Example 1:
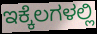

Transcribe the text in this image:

ಇಕ್ಕೆಲಗಳಲ್ಲಿ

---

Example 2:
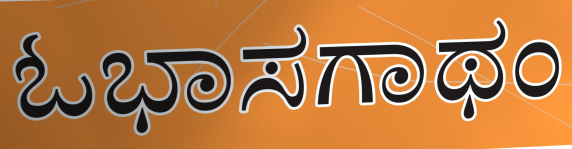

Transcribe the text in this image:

ಓಭಾಸಗಾಥಂ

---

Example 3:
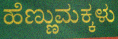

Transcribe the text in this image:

ಹೆಣ್ಣುಮಕ್ಕಳು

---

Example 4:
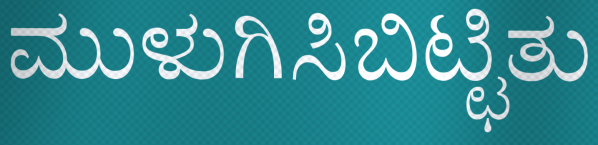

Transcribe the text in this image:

ಮುಳುಗಿಸಿಬಿಟ್ಟಿತು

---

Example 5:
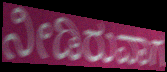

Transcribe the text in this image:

ನೀಡಿರುವಾಗ